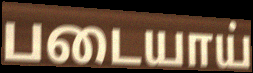
படையாய்